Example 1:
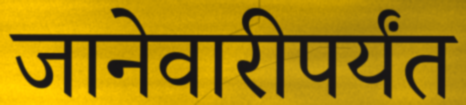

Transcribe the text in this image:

जानेवारीपर्यंत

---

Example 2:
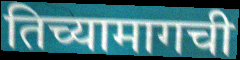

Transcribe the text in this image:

तिच्यामागची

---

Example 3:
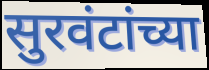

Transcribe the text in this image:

सुरवंटांच्या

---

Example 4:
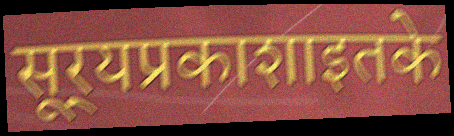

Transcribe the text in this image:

सूर्यप्रकाशाइतके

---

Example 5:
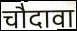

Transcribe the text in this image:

चौदावा